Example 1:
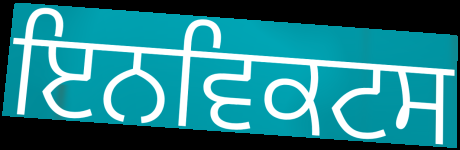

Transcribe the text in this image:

ਇਨਵਿਕਟਸ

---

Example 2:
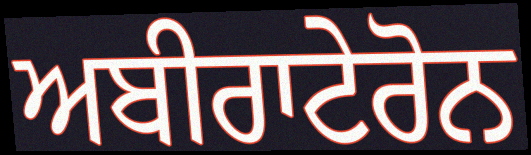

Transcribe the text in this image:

ਅਬੀਰਾਟੇਰੋਨ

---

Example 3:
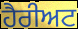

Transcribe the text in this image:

ਹੈਰੀਅਟ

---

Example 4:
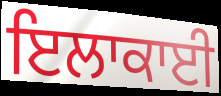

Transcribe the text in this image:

ਇਲਾਕਾਈ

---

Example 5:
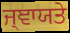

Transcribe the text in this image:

ਜ੍ਞਾਯਤੇ